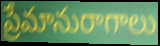
ప్రేమానురాగాలు